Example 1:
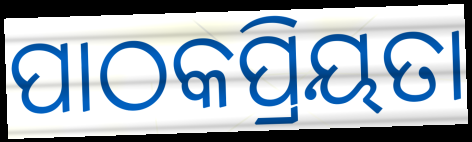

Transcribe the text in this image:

ପାଠକପ୍ରିୟତା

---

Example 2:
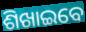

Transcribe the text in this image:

ଶିଖାଇବେ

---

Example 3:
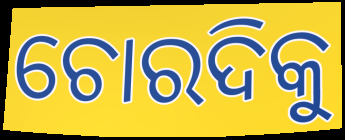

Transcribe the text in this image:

ଚୋରଦିକୁ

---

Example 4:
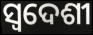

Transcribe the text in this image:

ସ୍ୱଦେଶୀ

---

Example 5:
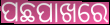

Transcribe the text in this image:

ପଛପାଖରେ